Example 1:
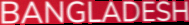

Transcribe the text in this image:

BANGLADESH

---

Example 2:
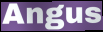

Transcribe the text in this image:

Angus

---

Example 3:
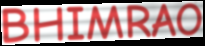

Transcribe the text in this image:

BHIMRAO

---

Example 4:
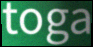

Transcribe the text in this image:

toga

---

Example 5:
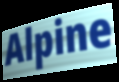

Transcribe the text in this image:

Alpine